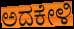
ಅದಕೇಳಿ